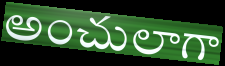
అంచులాగా